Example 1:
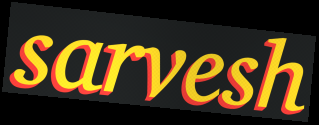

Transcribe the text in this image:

sarvesh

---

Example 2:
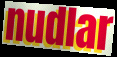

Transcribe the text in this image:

nudlar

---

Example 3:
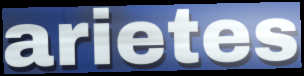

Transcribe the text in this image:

arietes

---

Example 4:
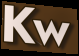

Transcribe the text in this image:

Kw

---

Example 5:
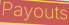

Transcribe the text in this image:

Payouts